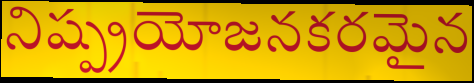
నిష్ప్రయోజనకరమైన